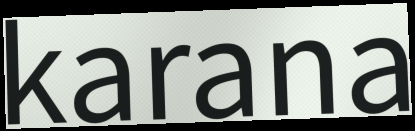
karana